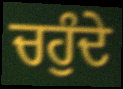
ਚਹੁੰਦੇ